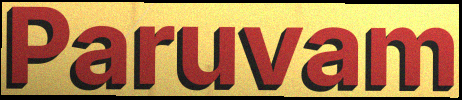
Paruvam